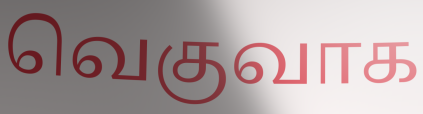
வெகுவாக